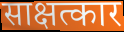
साक्षत्कार